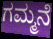
ಗಮ್ಮನೆ